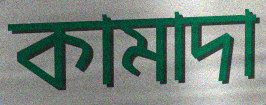
কামাদা